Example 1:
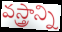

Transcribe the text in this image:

వస్త్రాన్ని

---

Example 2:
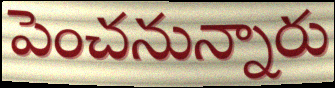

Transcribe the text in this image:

పెంచనున్నారు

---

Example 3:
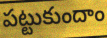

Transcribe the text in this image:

పట్టుకుందాం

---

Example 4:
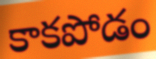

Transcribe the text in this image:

కాకపోడం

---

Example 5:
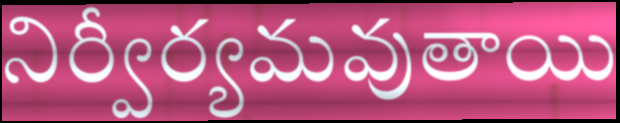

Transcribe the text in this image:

నిర్వీర్యమవుతాయి